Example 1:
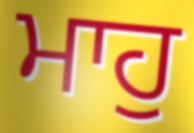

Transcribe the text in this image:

ਮਾਹੁ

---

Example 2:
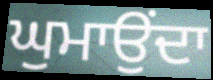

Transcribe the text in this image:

ਘੁਮਾਉਂਦਾ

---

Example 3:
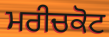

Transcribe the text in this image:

ਮਰੀਚਕੋਟ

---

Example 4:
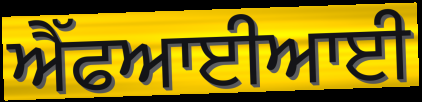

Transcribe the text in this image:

ਐੱਫਆਈਆਈ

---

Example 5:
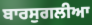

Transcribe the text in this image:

ਬਾਰਸੁਗਲੀਆ